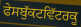
ਫੇਸਬੁੱਕਟਵਿੱਟਰਕੂ